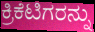
ಕ್ರಿಕೆಟಿಗರನ್ನು